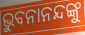
ଭୁବନାନନ୍ଦଙ୍କୁ